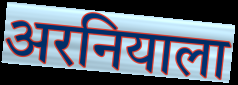
अरनियाला